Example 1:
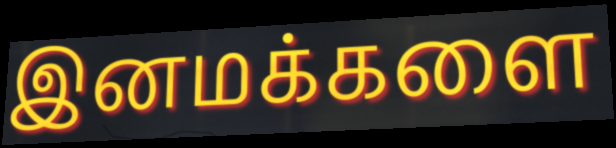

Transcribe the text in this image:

இனமக்களை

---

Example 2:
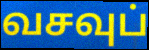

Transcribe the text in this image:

வசவுப்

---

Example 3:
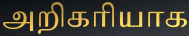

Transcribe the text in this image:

அறிகரியாக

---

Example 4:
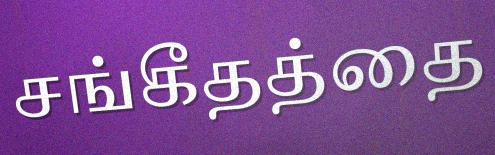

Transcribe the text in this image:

சங்கீதத்தை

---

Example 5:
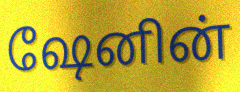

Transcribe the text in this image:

ஷேனின்